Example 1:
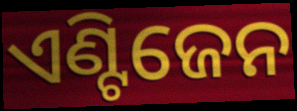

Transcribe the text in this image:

ଏଣ୍ଟିଜେନ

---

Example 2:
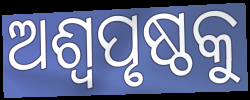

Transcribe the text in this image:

ଅଶ୍ୱପୃଷ୍ଠକୁ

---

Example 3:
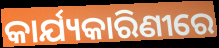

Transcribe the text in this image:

କାର୍ଯ୍ୟକାରିଣୀରେ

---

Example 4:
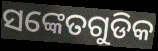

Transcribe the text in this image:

ସଙ୍କେତଗୁଡିକ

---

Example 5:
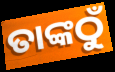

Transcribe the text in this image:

ତାଙ୍କଠୁଁ